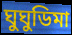
ঘুঘুডিমা